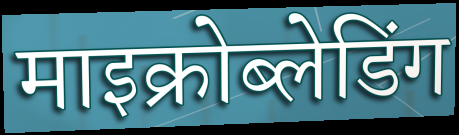
माइक्रोब्लेडिंग